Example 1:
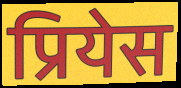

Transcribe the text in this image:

प्रियेस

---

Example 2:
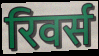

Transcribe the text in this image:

रिवर्स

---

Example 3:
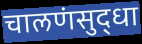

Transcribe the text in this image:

चालणंसुद्धा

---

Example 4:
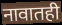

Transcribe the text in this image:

नावातही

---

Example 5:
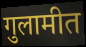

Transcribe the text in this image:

गुलामीत